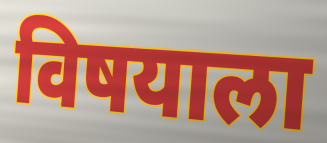
विषयाला